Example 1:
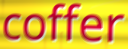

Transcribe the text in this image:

coffer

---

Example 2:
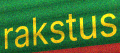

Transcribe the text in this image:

rakstus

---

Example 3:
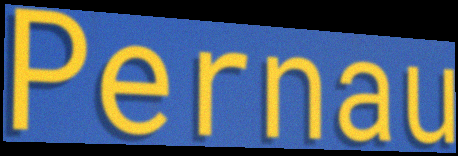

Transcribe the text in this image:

Pernau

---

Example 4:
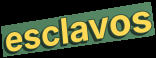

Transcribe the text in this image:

esclavos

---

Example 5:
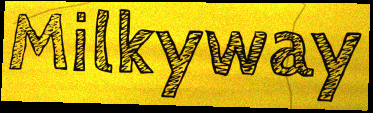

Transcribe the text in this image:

Milkyway